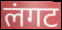
लंगट